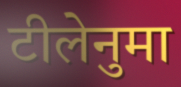
टीलेनुमा